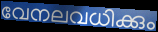
വേനലവധിക്കും